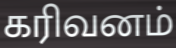
கரிவனம்